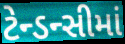
ટેન્ડન્સીમાં